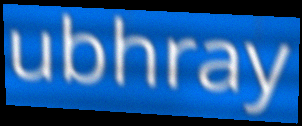
ubhray